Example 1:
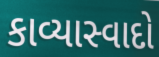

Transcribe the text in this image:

કાવ્યાસ્વાદો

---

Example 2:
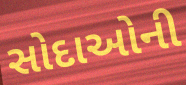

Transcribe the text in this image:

સોદાઓની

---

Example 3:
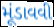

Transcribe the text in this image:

મૂંડાવવી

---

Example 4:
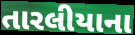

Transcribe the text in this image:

તારલીયાના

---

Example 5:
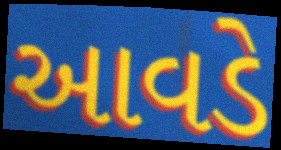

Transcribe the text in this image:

આવડે